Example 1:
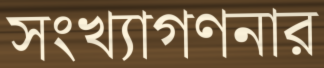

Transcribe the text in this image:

সংখ্যাগণনার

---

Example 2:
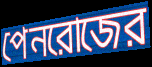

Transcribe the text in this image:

পেনরোজের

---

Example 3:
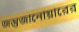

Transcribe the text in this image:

জন্তুজানোয়ারের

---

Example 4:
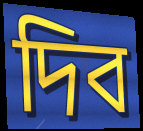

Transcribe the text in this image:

দিব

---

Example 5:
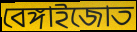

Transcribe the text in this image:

বেঙ্গাইজোত